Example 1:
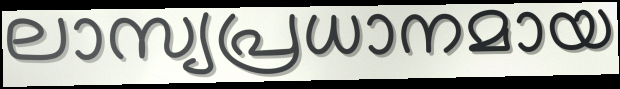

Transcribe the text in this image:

ലാസ്യപ്രധാനമായ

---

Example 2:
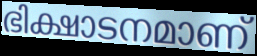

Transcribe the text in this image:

ഭിക്ഷാടനമാണ്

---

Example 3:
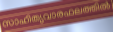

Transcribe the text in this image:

സാഹിത്യവാരഫലത്തിൽ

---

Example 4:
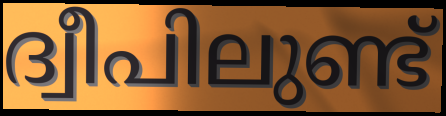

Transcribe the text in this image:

ദ്വീപിലുണ്ട്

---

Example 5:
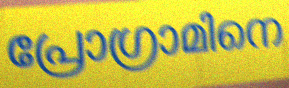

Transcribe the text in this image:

പ്രോഗ്രാമിനെ